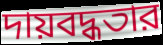
দায়বদ্ধতার